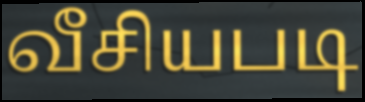
வீசியபடி